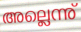
അല്ലെന്നു്